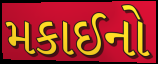
મકાઈનો